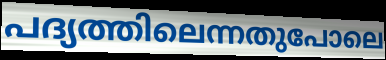
പദ്യത്തിലെന്നതുപോലെ